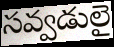
సవ్వడులై